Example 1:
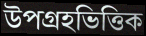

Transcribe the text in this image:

উপগ্রহভিত্তিক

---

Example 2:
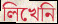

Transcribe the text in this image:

লিখেনি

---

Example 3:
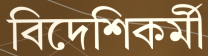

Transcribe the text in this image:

বিদেশিকর্মী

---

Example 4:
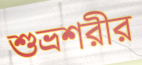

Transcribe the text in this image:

শুভ্রশরীর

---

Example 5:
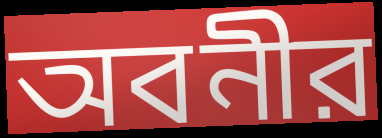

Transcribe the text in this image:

অবনীর